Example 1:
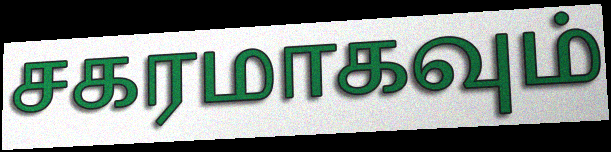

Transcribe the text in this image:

சகரமாகவும்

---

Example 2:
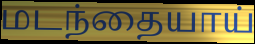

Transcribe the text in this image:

மடந்தையாய்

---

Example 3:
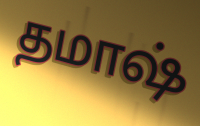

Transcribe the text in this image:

தமாஷ்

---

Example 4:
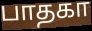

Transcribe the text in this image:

பாதகா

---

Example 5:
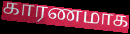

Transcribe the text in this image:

காரணமாக